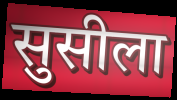
सुसीला